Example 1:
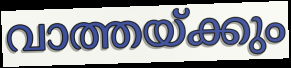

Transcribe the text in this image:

വാത്തയ്ക്കും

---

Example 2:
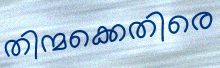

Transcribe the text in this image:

തിന്മക്കെതിരെ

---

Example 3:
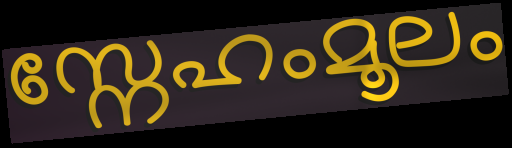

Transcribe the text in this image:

സ്നേഹംമൂലം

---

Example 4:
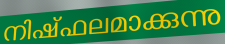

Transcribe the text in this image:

നിഷ്ഫലമാക്കുന്നു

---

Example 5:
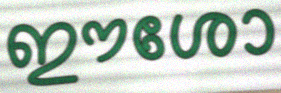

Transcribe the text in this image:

ഈശോ